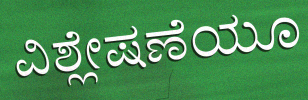
ವಿಶ್ಲೇಷಣೆಯೂ